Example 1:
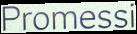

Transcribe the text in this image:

Promessi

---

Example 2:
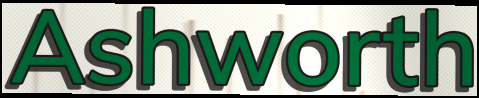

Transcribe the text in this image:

Ashworth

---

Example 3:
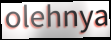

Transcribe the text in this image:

olehnya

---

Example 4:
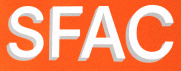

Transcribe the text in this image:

SFAC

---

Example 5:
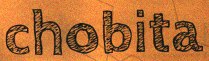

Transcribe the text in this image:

chobita